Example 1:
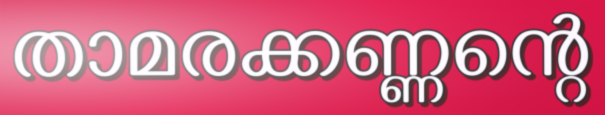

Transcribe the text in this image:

താമരക്കണ്ണന്റെ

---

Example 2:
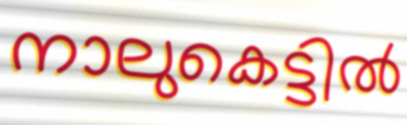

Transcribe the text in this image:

നാലുകെട്ടിൽ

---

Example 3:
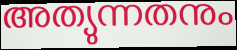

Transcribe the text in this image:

അത്യുന്നതനും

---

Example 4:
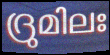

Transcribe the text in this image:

ദ്രുമിലഃ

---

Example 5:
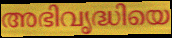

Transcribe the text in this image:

അഭിവൃദ്ധിയെ